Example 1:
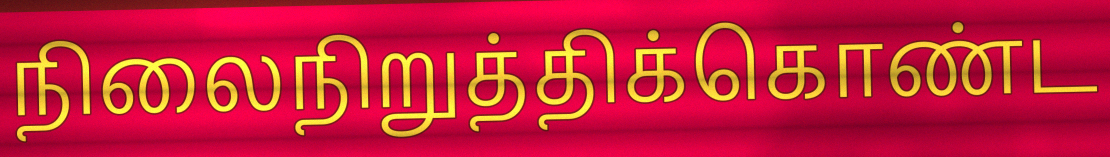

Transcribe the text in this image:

நிலைநிறுத்திக்கொண்ட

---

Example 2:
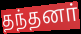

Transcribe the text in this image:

தந்தனர்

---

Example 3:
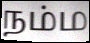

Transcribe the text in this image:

நம்ம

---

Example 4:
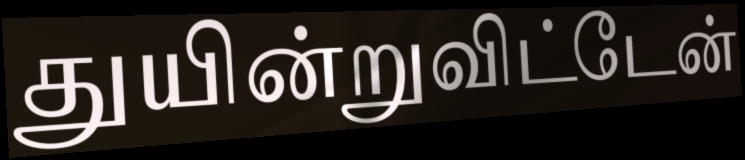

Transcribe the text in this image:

துயின்றுவிட்டேன்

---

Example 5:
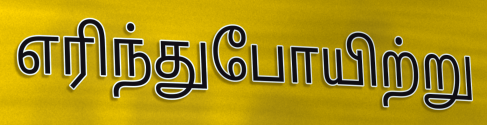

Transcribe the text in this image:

எரிந்துபோயிற்று